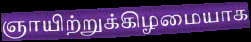
ஞாயிற்றுக்கிழமையாக